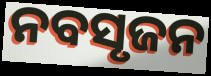
ନବସୃଜନ